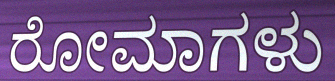
ರೋಮಾಗಳು